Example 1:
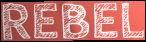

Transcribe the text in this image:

REBEL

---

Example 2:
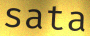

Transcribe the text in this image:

sata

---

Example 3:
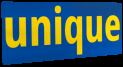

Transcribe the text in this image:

unique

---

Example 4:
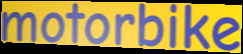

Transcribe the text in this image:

motorbike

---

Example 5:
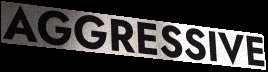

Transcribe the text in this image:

AGGRESSIVE